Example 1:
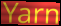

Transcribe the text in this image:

Yarn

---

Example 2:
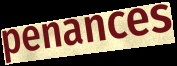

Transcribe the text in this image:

penances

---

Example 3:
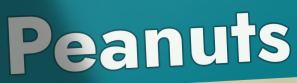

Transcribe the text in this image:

Peanuts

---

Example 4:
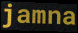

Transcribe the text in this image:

jamna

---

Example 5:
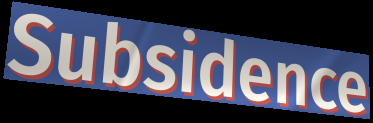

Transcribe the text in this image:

Subsidence